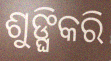
ଶୁଙ୍ଘିକରି